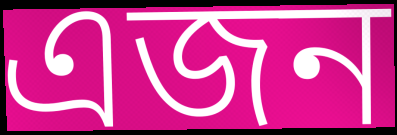
এজন